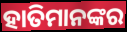
ହାତିମାନଙ୍କର